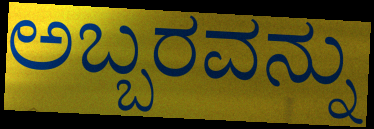
ಅಬ್ಬರವನ್ನು